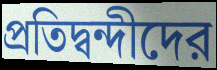
প্রতিদ্বন্দীদের